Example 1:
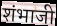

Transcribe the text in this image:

शंभाजी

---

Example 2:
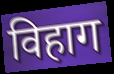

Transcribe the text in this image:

विहाग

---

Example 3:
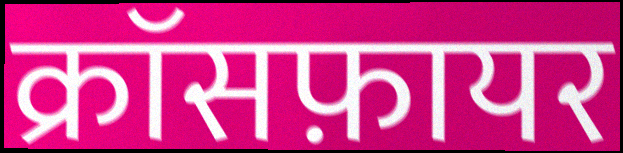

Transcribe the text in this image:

क्रॉसफ़ायर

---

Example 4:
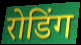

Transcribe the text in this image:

रोडिंग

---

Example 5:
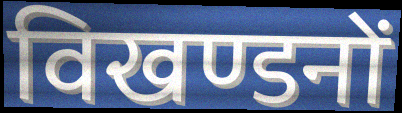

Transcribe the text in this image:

विखण्डनों